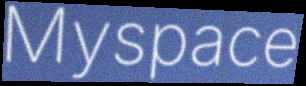
Myspace